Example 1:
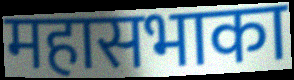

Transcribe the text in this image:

महासभाका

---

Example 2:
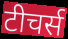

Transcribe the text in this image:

टीचर्स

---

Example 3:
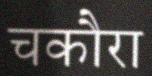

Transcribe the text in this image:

चकौरा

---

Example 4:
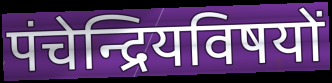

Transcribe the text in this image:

पंचेन्द्रियविषयों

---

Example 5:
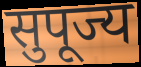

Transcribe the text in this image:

सुपूज्य